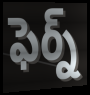
ఫెర్న్